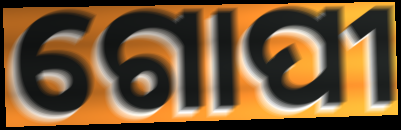
ଗୋପୀ